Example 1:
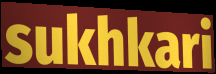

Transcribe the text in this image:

sukhkari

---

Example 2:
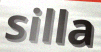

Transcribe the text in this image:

silla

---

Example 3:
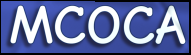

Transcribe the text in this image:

MCOCA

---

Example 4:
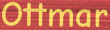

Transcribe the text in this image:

Ottmar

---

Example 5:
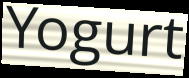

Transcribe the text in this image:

Yogurt